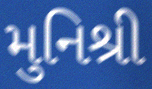
મુનિશ્રી